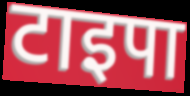
टाइपा